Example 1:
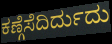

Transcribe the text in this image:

ಕಣ್ಗೆಸೆದಿರ್ದುದು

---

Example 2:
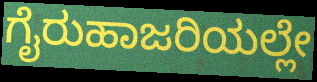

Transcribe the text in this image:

ಗೈರುಹಾಜರಿಯಲ್ಲೇ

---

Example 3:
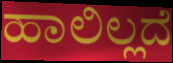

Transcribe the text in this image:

ಹಾಲಿಲ್ಲದೆ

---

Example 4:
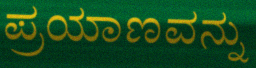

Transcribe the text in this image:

ಪ್ರಯಾಣವನ್ನು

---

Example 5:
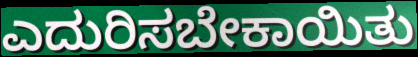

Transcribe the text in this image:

ಎದುರಿಸಬೇಕಾಯಿತು